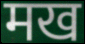
मख